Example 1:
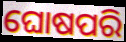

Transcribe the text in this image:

ଘୋଷପରି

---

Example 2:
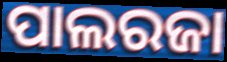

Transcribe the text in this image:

ପାଲରଜା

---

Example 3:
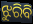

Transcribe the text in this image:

ଝୁରିବି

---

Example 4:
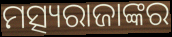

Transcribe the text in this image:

ମତ୍ସ୍ୟରାଜାଙ୍କର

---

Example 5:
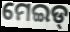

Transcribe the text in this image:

ମେଇଡ୍